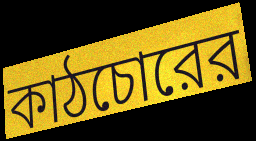
কাঠচোরের